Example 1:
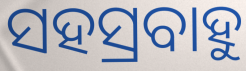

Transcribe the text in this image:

ସହସ୍ରବାହୁ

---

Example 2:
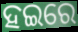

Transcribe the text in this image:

ହଇରେ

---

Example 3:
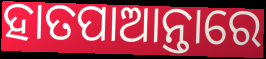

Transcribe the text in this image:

ହାତପାଆନ୍ତାରେ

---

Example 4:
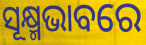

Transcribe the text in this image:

ସୂକ୍ଷ୍ମଭାବରେ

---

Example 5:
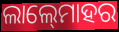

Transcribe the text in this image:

ଲାଲ୍‍ମୋହର